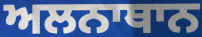
ਅਲਨਾਥਾਨ